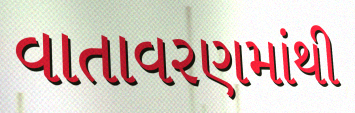
વાતાવરણમાંથી